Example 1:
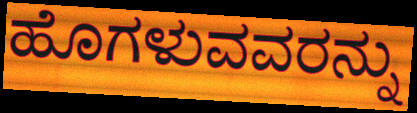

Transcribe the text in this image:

ಹೊಗಳುವವರನ್ನು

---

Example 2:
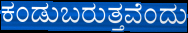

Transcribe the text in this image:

ಕಂಡುಬರುತ್ತವೆಂದು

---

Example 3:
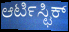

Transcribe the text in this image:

ಆರ್ಟಿಸ್ಟಿಕ್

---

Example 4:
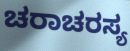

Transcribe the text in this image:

ಚರಾಚರಸ್ಯ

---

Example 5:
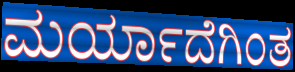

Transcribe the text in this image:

ಮರ್ಯಾದೆಗಿಂತ